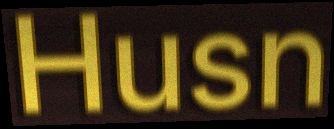
Husn